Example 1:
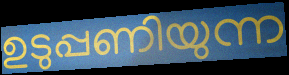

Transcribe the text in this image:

ഉടുപ്പണിയുന്ന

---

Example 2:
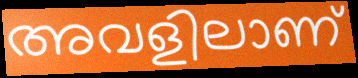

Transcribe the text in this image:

അവളിലാണ്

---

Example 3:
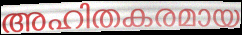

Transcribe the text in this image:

അഹിതകരമായ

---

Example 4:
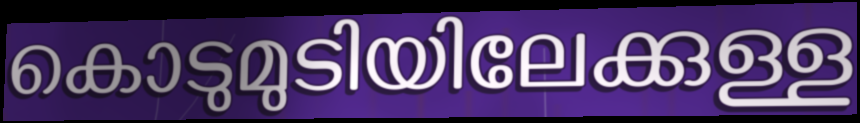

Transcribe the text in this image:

കൊടുമുടിയിലേക്കുള്ള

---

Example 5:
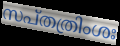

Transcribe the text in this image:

സപ്തത്രിംശഃ